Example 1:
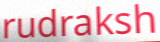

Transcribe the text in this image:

rudraksh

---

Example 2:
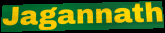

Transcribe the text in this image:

Jagannath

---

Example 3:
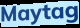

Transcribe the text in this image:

Maytag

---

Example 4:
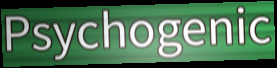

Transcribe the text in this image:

Psychogenic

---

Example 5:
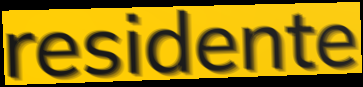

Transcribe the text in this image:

residente